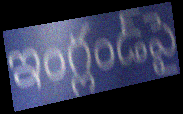
ఇంగ్లండ్‌పై